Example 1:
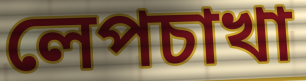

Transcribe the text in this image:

লেপচাখা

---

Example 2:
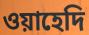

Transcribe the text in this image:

ওয়াহেদি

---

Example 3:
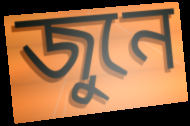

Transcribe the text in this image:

জুনে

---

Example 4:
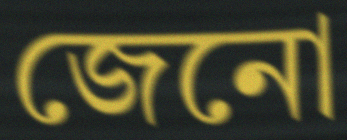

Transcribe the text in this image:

জেনো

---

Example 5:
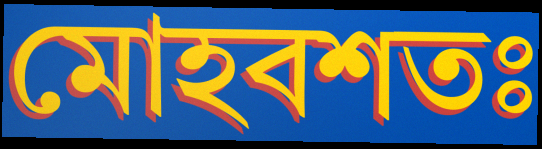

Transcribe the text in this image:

মোহবশতঃ